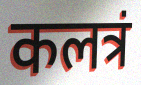
कलत्रं